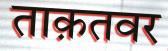
ताक़तवर